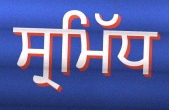
ਸ੍ਰਮਿੱਧ